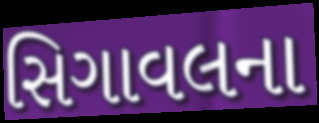
સિગાવલના